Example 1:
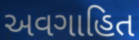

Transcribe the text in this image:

અવગાહિત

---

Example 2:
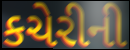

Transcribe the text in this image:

કચેરીની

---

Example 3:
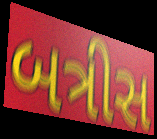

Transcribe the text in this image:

બત્રીસ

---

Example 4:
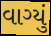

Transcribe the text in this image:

વાગ્યું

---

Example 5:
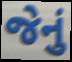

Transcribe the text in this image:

જેનું